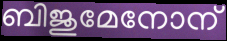
ബിജുമേനോന്